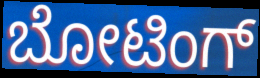
ಬೋಟಿಂಗ್